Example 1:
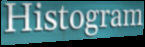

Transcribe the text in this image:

Histogram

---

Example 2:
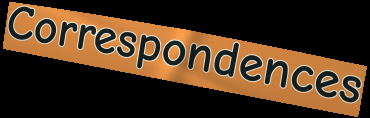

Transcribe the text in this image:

Correspondences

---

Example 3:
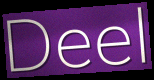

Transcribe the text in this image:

Deel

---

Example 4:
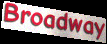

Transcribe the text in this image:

Broadway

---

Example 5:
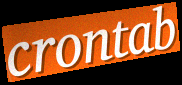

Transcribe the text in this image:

crontab